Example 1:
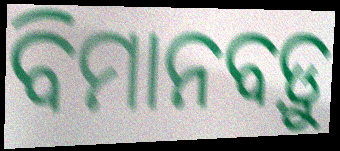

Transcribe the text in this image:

ବିମାନବଡ଼ୁ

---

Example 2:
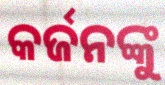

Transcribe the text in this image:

କର୍ଜନଙ୍କୁ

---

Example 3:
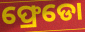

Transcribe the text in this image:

ଫ୍ରେଡୋ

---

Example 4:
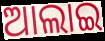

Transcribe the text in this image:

ଆଲାଇ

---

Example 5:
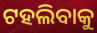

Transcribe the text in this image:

ଟହଲିବାକୁ